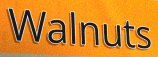
Walnuts